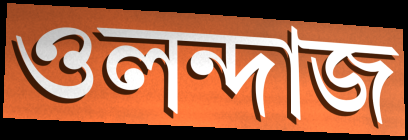
ওলন্দাজ